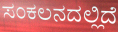
ಸಂಕಲನದಲ್ಲಿದೆ